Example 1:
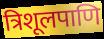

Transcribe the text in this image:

त्रिशूलपाणि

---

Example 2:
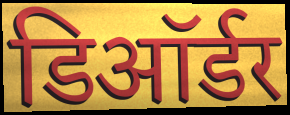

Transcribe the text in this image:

डिऑर्डर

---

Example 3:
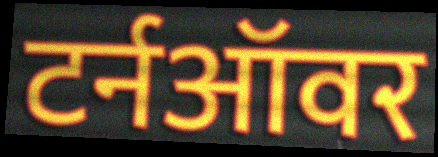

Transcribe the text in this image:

टर्नऑवर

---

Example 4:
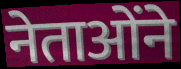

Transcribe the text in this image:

नेताओंने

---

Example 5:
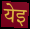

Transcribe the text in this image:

येइ